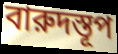
বারুদস্তূপ